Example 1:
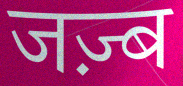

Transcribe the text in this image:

जज़्ब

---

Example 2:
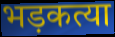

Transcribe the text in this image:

भड़कत्या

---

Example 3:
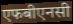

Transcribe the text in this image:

एफबीएनसी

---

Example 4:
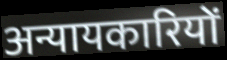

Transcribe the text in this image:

अन्यायकारियों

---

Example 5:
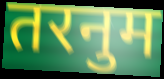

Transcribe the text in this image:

तरनुम